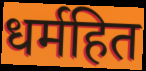
धर्महित